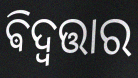
ଵିଦ୍ବତ୍ତାର